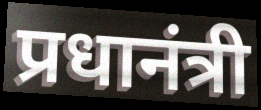
प्रधानंत्री